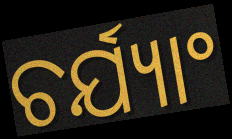
ଚର୍ଯ୍ୟାଂ